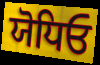
ਯੋਧਿਓ